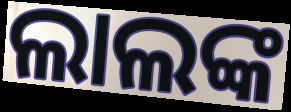
ଲାଲଙ୍କ